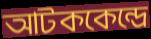
আটককেন্দ্রে